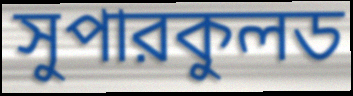
সুপারকুলড